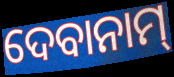
ଦେବାନାମ୍